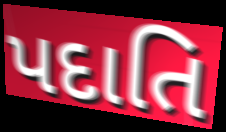
પદાતિ